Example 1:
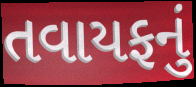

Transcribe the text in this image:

તવાયફનું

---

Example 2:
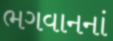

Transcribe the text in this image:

ભગવાનનાં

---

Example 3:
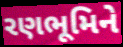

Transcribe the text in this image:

રણભૂમિને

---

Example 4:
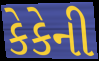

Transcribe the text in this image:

કેકેની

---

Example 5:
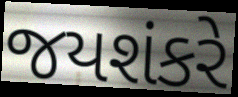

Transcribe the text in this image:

જયશંકરે